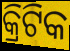
କ୍ରିଟିକ